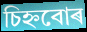
চিহ্নবোৰ